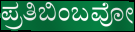
ಪ್ರತಿಬಿಂಬವೋ